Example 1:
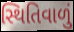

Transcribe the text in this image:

સ્થિતિવાળું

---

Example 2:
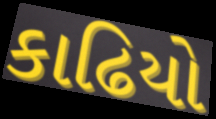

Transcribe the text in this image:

કાઢિયો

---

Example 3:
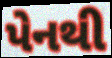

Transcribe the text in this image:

પેનથી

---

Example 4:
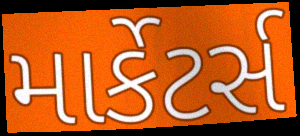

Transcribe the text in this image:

માર્કેટર્સ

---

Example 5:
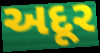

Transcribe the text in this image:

અદૂર